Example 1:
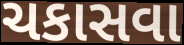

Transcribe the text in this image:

ચકાસવા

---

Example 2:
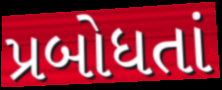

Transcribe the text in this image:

પ્રબોધતાં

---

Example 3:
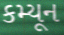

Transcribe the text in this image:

કમ્યૂન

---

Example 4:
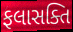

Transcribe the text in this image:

ફલાસક્તિ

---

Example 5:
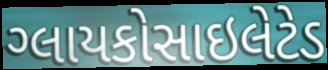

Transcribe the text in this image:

ગ્લાયકોસાઇલેટેડ